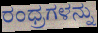
ರಂಧ್ರಗಳನ್ನು